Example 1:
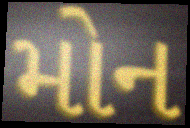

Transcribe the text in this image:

મોન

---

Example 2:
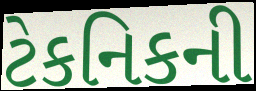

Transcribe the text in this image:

ટેકનિકની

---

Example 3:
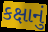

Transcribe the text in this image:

કક્ષાનું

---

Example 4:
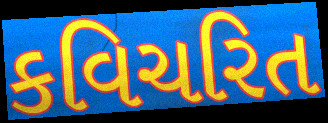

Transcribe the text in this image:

કવિચરિત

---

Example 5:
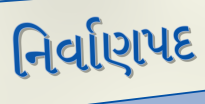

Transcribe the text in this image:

નિર્વાણપદ